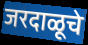
जरदाळूचे